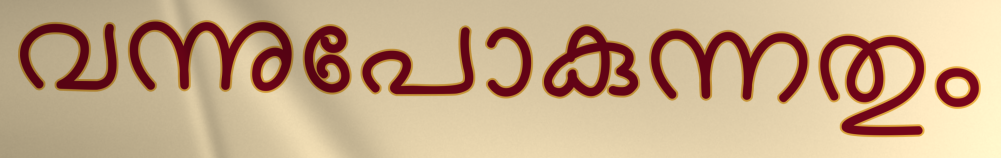
വന്നുപോകുന്നതും